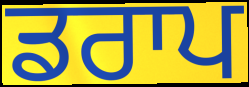
ਡਰਾਪ